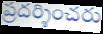
ప్రదర్శించరు